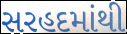
સરહદમાંથી